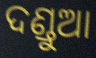
ଦଣ୍ଡୁଆ